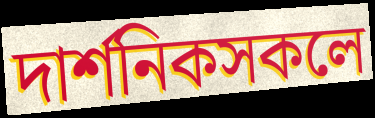
দাৰ্শনিকসকলে